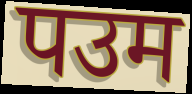
पउम